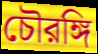
চৌরঙ্গি